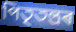
পিতৃতন্ত্ৰৰ